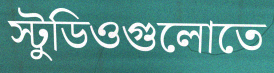
স্টুডিওগুলোতে